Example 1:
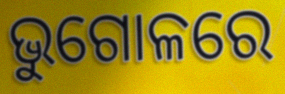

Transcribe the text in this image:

ଭୁଗୋଳରେ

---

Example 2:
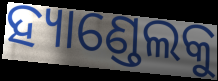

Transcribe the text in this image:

ହ୍ୟାଣ୍ଡେଲକୁ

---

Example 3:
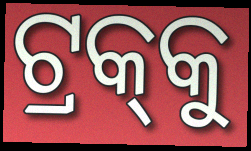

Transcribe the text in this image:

ଟ୍ରକ୍‍କୁ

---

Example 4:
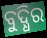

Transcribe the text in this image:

ବୁଦ୍ଧିର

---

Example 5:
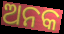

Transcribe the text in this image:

ଅନକ